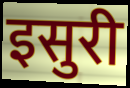
इसुरी